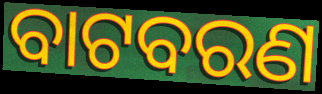
ବାଟବରଣ